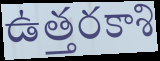
ఉత్తరకాశి